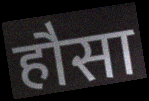
हौसा